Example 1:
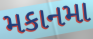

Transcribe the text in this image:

મકાનમા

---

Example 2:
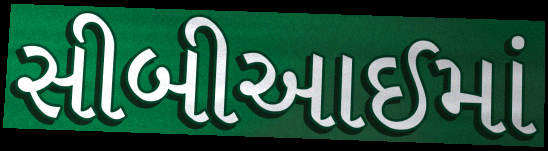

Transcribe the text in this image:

સીબીઆઈમાં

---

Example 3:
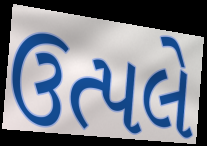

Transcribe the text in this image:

ઉત્પલે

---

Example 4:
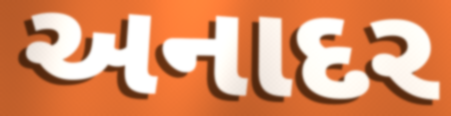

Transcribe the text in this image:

અનાદર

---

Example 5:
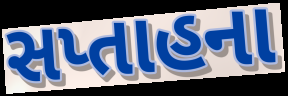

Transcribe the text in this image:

સપ્તાહના